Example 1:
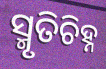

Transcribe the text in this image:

ସ୍ମୃତିଚିହ୍ନ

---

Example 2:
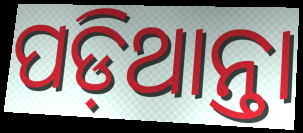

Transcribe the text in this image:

ପଡ଼ିଥାନ୍ତା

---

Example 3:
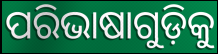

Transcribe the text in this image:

ପରିଭାଷାଗୁଡ଼ିକୁ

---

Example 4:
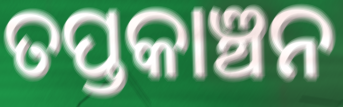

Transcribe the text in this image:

ତପ୍ତକାଞ୍ଚନ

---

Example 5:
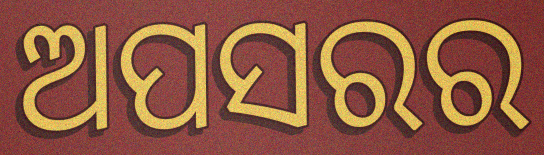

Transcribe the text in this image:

ଅପସରର